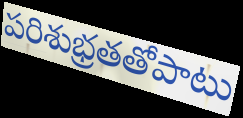
పరిశుభ్రతతోపాటు